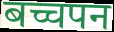
बच्चपन